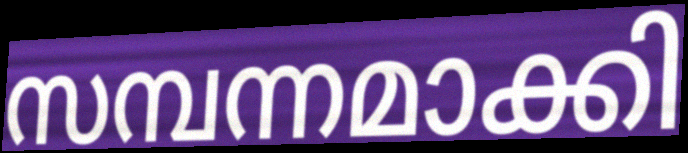
സമ്പന്നമാക്കി